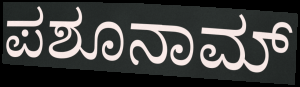
ಪಶೂನಾಮ್